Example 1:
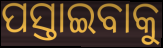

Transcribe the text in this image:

ପସ୍ତାଇବାକୁ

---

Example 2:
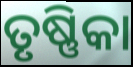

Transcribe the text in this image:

ତୃଷ୍ଣିକା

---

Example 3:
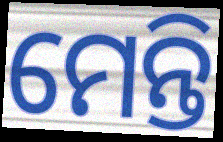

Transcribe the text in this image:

ମେନ୍ତି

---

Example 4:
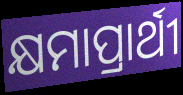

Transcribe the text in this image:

କ୍ଷମାପ୍ରାର୍ଥୀ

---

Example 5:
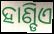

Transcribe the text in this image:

ହାଣ୍ଡିଏ